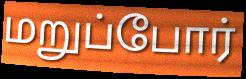
மறுப்போர்